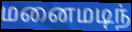
மனைமடிந்